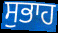
ਸੁਭਾਹ